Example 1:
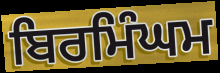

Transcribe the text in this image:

ਬਿਰਮਿੰਘਮ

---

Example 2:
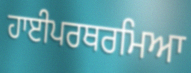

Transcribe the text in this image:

ਹਾਈਪਰਥਰਮਿਆ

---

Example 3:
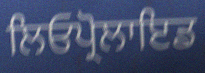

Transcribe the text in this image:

ਲਿਓਪ੍ਰੋਲਾਇਡ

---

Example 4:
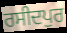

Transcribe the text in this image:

ਰਸੀਦਪੁਰ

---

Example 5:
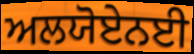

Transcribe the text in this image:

ਅਲਯੋਏਨਈ